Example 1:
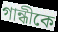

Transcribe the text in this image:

গান্ধীকে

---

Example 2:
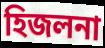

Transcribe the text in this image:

হিজলনা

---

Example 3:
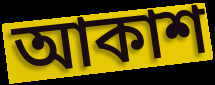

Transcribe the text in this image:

আকাশ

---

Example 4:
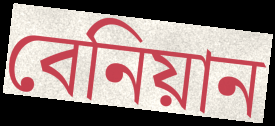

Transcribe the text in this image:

বেনিয়ান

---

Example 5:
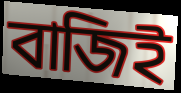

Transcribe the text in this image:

বাজিই